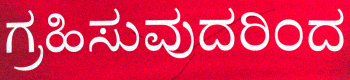
ಗ್ರಹಿಸುವುದರಿಂದ